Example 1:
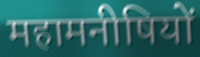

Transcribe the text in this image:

महामनीषियों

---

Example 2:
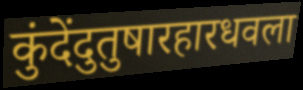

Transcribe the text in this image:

कुंदेंदुतुषारहारधवला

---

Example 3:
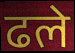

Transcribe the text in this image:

ढले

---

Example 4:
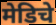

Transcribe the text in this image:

मेडिचे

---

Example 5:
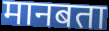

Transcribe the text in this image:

मानबता